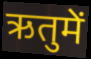
ऋतुमें